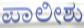
ಪಾಲೀಶು